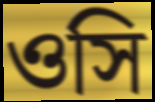
ওসি